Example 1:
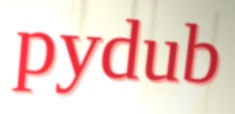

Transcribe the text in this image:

pydub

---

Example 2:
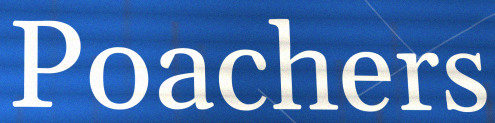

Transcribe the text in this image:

Poachers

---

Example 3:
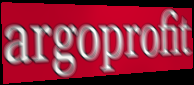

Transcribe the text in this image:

argoprofit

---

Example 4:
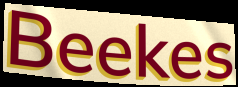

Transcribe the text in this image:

Beekes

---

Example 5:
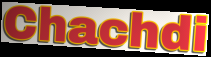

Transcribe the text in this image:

Chachdi